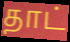
தாட்